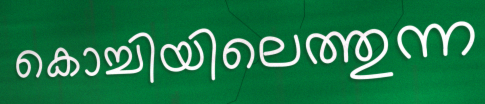
കൊച്ചിയിലെത്തുന്ന